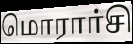
மொரார்சி